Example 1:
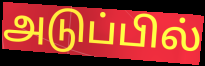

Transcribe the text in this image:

அடுப்பில்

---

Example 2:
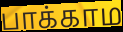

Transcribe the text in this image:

பாக்காம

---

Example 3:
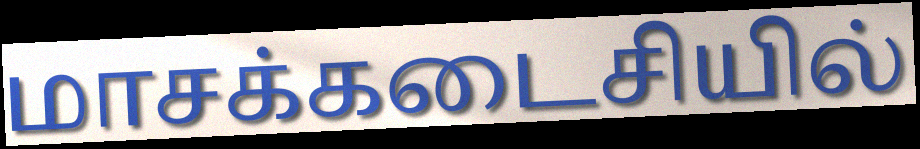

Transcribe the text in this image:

மாசக்கடைசியில்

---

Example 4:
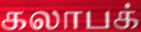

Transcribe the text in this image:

கலாபக்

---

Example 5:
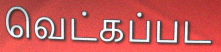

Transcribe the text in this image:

வெட்கப்பட